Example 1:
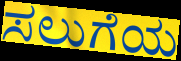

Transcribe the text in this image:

ಸಲುಗೆಯ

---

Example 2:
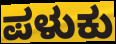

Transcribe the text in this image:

ಪಳುಕು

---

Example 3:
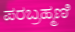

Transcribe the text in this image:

ಪರಬ್ರಹ್ಮಣಿ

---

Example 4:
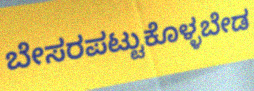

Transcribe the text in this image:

ಬೇಸರಪಟ್ಟುಕೊಳ್ಳಬೇಡ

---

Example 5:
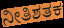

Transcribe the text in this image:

ನೀತಿಶತಕ